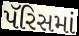
પૅરિસમાં